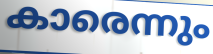
കാരെന്നും